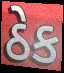
ઠેક